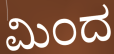
ಮಿಂದ